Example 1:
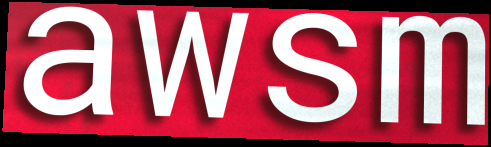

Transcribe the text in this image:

awsm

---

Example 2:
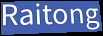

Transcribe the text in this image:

Raitong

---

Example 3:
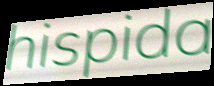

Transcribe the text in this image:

hispida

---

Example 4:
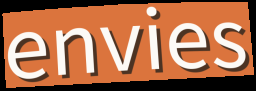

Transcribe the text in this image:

envies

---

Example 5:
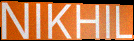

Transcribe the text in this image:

NIKHIL